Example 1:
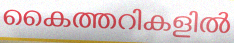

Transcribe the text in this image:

കൈത്തറികളിൽ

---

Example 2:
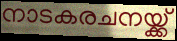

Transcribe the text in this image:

നാടകരചനയ്ക്ക്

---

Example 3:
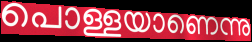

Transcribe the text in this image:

പൊള്ളയാണെന്നു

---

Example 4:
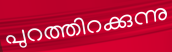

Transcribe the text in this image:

പുറത്തിറക്കുന്നു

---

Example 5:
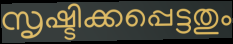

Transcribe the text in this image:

സൃഷ്ടിക്കപ്പെട്ടതും